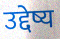
उद्देष्य